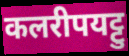
कलरीपयट्टु